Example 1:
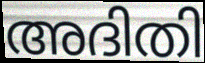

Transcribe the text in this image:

അദിതി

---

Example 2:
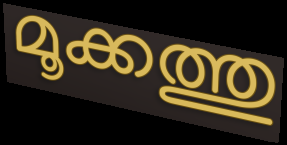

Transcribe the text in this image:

മൂക്കത്തു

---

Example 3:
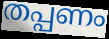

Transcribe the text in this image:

തപ്പണം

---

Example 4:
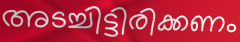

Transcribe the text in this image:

അടച്ചിട്ടിരിക്കണം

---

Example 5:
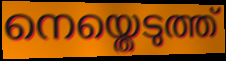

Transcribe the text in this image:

നെയ്തെടുത്ത്